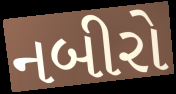
નબીરો